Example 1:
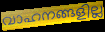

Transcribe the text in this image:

വാഹനങ്ങളില്ല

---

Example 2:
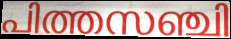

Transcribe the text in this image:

പിത്തസഞ്ചി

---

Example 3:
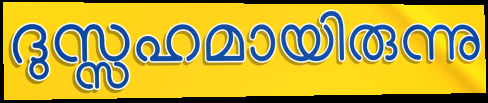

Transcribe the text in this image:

ദുസ്സഹമായിരുന്നു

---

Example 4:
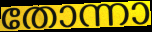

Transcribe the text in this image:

തോന്നാ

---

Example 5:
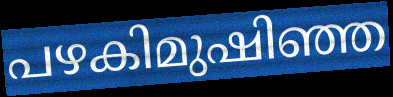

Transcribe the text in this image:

പഴകിമുഷിഞ്ഞ